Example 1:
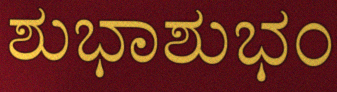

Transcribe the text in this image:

ಶುಭಾಶುಭಂ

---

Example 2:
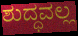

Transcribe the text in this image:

ಶುದ್ಧವಲ್ಲ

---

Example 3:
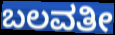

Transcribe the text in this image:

ಬಲವತೀ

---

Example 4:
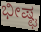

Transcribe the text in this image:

ಭೀಷ್ಟ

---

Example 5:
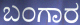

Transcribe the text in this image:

ಬಂಗಾರ